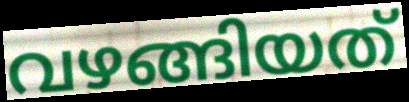
വഴങ്ങിയത്